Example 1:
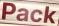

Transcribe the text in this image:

Pack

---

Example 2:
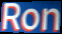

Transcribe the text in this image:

Ron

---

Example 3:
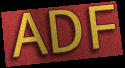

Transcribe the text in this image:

ADF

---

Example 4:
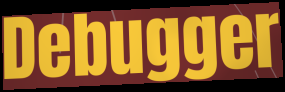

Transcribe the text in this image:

Debugger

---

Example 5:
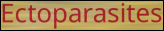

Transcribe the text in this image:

Ectoparasites